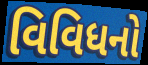
વિવિધનો